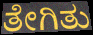
ತೇಗಿತು